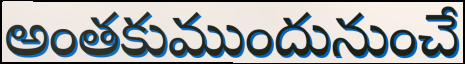
అంతకుముందునుంచే